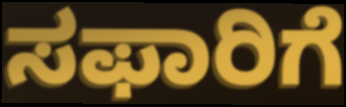
ಸಫಾರಿಗೆ